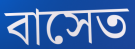
বাসেত